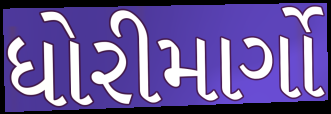
ધોરીમાર્ગો